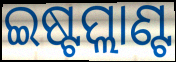
ଇଷ୍ଟପ୍ଲାଣ୍ଟ